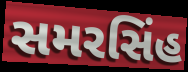
સમરસિંહ